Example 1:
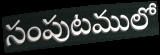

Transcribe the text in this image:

సంపుటములో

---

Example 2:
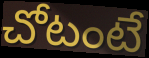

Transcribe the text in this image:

చోటంటే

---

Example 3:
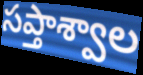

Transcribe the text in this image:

సప్తాశ్వాల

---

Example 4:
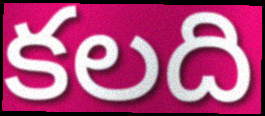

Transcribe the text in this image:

కలది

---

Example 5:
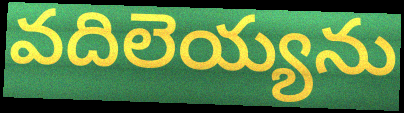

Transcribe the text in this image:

వదిలెయ్యను